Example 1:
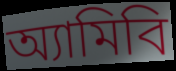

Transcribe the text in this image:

অ্যামিবি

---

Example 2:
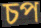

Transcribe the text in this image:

চপ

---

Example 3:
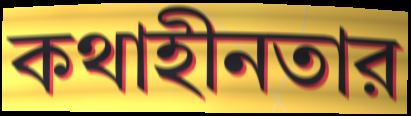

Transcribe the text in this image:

কথাহীনতার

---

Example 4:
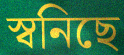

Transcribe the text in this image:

স্বনিছে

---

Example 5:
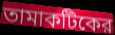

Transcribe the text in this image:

তামাকটিকের